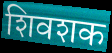
शिवशक